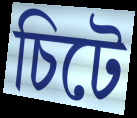
চিটে